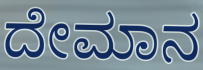
ದೇಮಾನ